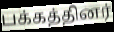
பக்கத்தினர்